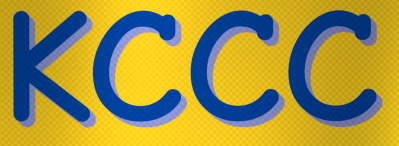
KCCC